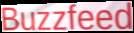
Buzzfeed